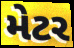
મેટર